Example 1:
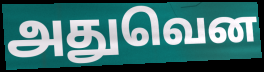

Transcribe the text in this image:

அதுவென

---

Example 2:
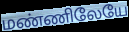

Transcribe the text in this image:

மண்ணிலேயே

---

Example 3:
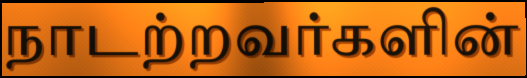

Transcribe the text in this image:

நாடற்றவர்களின்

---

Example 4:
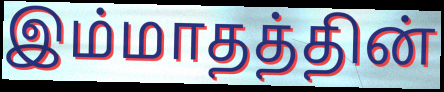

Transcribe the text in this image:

இம்மாதத்தின்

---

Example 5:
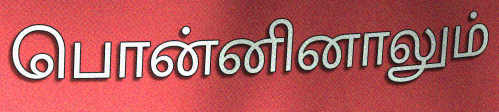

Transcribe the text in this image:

பொன்னினாலும்